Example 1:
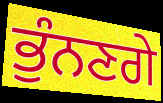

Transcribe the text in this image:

ਭੁੰਨਣਗੇ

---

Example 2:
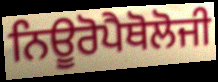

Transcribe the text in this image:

ਨਿਊਰੋਪੈਥੋਲੋਜੀ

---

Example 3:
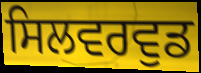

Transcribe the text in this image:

ਸਿਲਵਰਵੁਡ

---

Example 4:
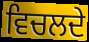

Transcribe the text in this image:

ਵਿਚਲਦੇ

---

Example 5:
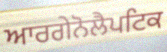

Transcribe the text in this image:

ਆਰਗੇਨੋਲੈਪਟਿਕ